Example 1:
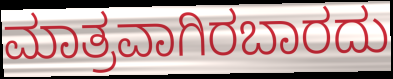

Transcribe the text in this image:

ಮಾತ್ರವಾಗಿರಬಾರದು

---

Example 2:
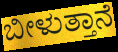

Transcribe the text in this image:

ಬೀಳುತ್ತಾನೆ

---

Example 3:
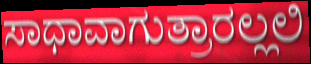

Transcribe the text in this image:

ಸಾಧಾವಾಗುತ್ರಾರಲ್ಲಲಿ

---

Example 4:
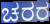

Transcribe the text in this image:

ಚರರ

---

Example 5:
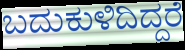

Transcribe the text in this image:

ಬದುಕುಳಿದಿದ್ದರೆ